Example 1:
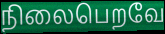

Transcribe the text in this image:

நிலைபெறவே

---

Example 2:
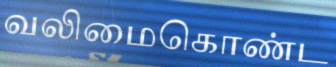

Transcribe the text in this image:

வலிமைகொண்ட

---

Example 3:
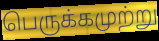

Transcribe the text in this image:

பெருக்கமுற்று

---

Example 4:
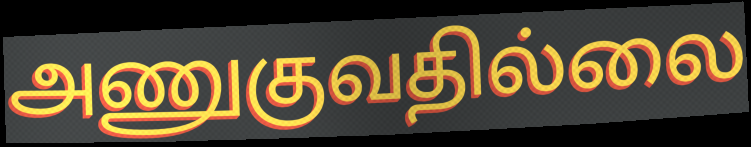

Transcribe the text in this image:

அணுகுவதில்லை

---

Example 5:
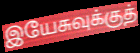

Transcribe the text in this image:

இயேசுவுக்குத்